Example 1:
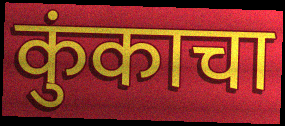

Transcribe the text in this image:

कुंकाचा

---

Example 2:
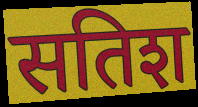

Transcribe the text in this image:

सतिश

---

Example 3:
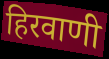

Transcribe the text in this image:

हिरवाणी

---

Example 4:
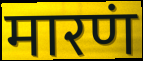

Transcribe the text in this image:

मारणं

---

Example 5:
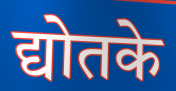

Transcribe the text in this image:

द्योतके